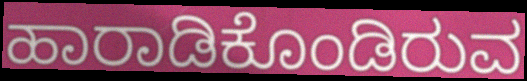
ಹಾರಾಡಿಕೊಂಡಿರುವ